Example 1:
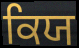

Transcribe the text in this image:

ਕਿਯ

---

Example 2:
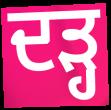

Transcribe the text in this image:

ਦੜ੍ਹ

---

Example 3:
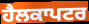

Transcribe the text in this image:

ਹੈਲਕਾਪਟਰ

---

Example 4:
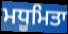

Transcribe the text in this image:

ਮਧੂਮਿਤਾ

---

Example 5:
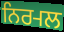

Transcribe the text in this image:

ਨਿਰ੍ਮਲ